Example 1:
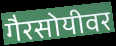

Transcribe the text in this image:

गैरसोयीवर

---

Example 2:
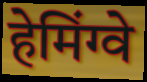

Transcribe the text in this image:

हेमिंग्वे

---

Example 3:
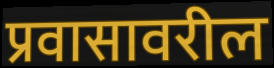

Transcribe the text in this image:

प्रवासावरील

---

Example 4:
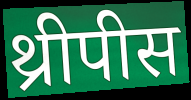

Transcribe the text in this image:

थ्रीपीस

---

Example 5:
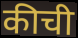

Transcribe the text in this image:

कीची